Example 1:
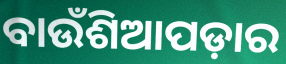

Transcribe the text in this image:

ବାଉଁଶିଆପଡ଼ାର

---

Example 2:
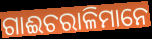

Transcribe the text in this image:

ଗାଈଚରାଳିମାନେ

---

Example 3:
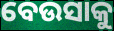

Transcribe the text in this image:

ବେଉସାକୁ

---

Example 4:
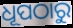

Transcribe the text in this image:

ଧୂପଠାରୁ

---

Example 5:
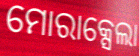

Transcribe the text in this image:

ମୋରାକ୍ସେଲା